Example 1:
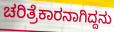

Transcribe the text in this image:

ಚರಿತ್ರೆಕಾರನಾಗಿದ್ದನು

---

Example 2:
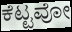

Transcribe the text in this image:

ಕೆಟ್ಟವೋ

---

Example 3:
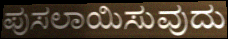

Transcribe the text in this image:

ಪುಸಲಾಯಿಸುವುದು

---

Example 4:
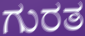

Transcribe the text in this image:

ಗುರತ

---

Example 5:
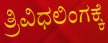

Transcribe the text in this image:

ತ್ರಿವಿಧಲಿಂಗಕ್ಕೆ